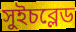
সুইচব্লেড